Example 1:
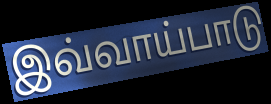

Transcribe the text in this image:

இவ்வாய்பாடு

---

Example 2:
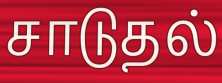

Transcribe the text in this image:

சாடுதல்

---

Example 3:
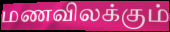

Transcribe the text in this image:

மணவிலக்கும்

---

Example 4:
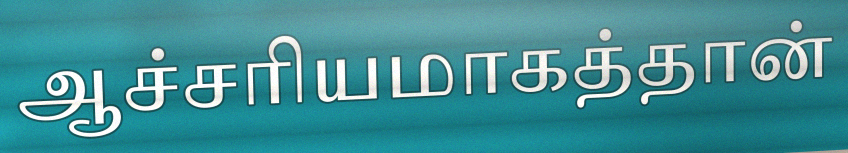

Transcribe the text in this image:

ஆச்சரியமாகத்தான்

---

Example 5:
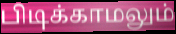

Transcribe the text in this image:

பிடிக்காமலும்